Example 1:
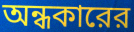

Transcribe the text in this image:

অন্ধকারের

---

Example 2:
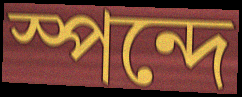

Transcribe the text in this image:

স্পন্দে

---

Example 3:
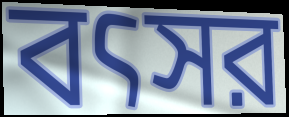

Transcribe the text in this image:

বৎসর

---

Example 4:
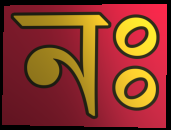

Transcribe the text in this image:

নঃ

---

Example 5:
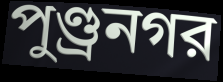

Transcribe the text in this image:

পুণ্ড্রনগর